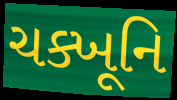
ચક્ખૂનિ